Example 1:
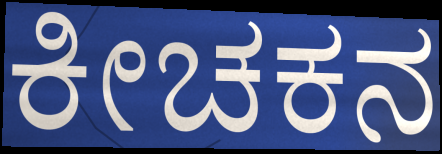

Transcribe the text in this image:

ಕೀಚಕನ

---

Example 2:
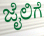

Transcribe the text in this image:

ಜೈಲಿಗೆ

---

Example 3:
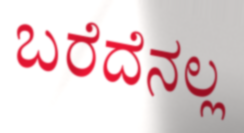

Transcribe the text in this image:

ಬರೆದೆನಲ್ಲ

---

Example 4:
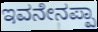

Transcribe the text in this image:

ಇವನೇನಪ್ಪಾ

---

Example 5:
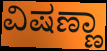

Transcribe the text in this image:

ವಿಷಣ್ಣಾ